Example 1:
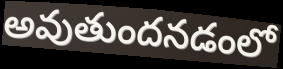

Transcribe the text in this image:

అవుతుందనడంలో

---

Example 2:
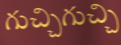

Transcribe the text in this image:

గుచ్చిగుచ్చి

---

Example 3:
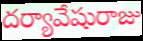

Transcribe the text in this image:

దర్యావేషురాజు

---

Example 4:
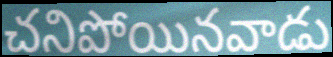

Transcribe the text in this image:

చనిపోయినవాడు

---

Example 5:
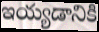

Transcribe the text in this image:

ఇయ్యడానికి